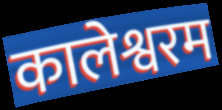
कालेश्वरम